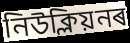
নিউক্লিয়নৰ